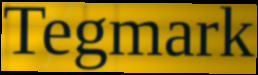
Tegmark